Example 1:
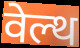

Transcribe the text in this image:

वेल्‍थ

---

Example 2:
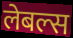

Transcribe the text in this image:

लेबल्स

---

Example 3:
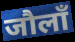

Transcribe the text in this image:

जौलाँ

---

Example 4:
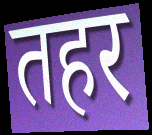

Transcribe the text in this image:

तहर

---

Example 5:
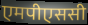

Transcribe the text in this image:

एमपीएससी